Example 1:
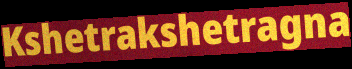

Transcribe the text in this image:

Kshetrakshetragna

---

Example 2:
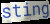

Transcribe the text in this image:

sting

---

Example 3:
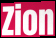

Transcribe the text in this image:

Zion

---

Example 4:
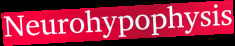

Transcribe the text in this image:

Neurohypophysis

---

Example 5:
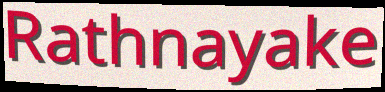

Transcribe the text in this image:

Rathnayake